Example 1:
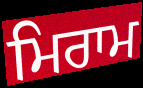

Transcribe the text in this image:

ਮਿਰਾਮ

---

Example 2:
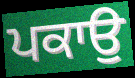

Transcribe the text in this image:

ਪਕਾਉ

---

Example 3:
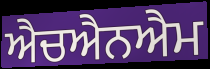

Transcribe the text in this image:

ਐਚਐਨਐਮ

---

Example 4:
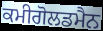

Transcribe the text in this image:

ਕਮੀਗੋਲਡਮੈਨ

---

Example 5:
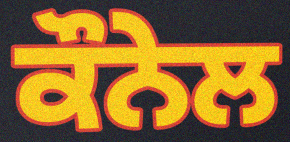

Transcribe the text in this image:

ਕੌਨੇਲ